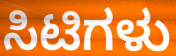
ಸಿಟಿಗಳು